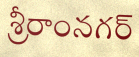
శ్రీరాంనగర్